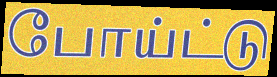
போய்ட்டு